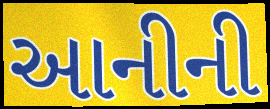
આનીની